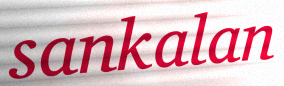
sankalan